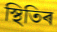
স্থিতিৰ